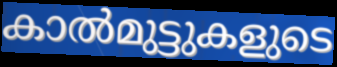
കാൽമുട്ടുകളുടെ